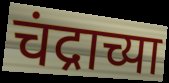
चंद्राच्या